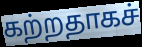
கற்றதாகச்